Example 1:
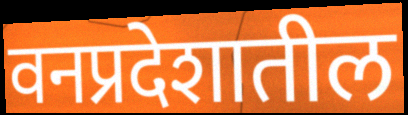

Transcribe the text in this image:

वनप्रदेशातील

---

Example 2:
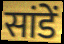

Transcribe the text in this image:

सांडें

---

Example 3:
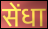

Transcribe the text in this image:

सेंधा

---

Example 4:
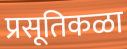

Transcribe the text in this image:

प्रसूतिकळा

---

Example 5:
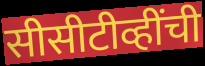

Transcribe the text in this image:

सीसीटीव्हींची